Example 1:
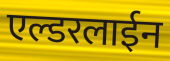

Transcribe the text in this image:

एल्डरलाईन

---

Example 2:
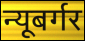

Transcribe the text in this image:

न्यूबर्गर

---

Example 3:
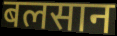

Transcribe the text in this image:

बलसान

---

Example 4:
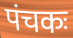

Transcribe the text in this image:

पंचकः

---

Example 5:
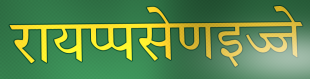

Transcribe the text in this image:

रायप्पसेणइज्जे